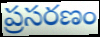
ప్రసరణం